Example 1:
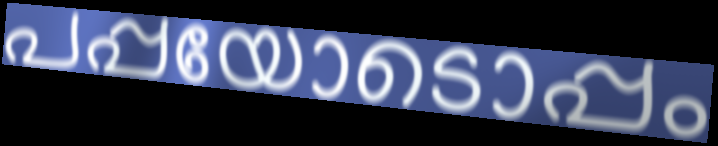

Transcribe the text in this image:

പപ്പയോടൊപ്പം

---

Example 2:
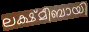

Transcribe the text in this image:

ലക്ഷ്മീബായി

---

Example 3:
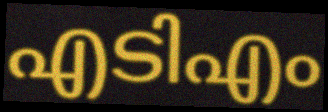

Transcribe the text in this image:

എടിഎം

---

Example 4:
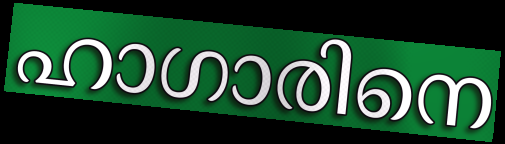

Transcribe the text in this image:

ഹാഗാരിനെ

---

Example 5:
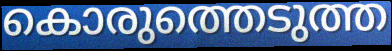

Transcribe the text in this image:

കൊരുത്തെടുത്ത